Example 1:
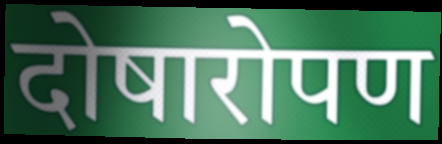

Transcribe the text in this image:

दोषारोपण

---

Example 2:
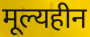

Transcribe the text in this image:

मूल्यहीन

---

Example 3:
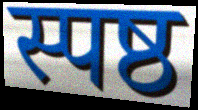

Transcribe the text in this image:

स्पष्ठ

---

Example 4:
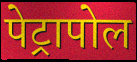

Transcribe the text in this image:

पेट्रापोल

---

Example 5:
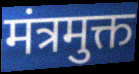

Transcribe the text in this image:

मंत्रमुक्त